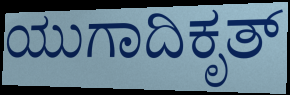
ಯುಗಾದಿಕೃತ್